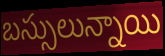
బస్సులున్నాయి